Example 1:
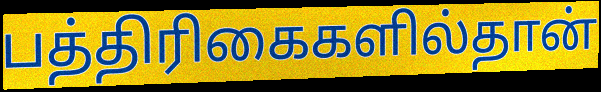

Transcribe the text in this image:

பத்திரிகைகளில்தான்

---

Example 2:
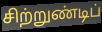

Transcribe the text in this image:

சிற்றுண்டிப்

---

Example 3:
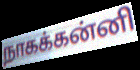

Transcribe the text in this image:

நாகக்கன்னி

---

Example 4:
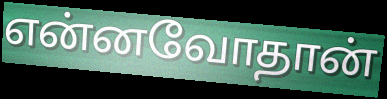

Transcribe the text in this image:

என்னவோதான்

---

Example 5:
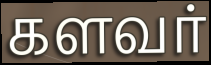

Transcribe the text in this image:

களவர்